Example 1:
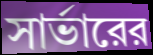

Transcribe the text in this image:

সার্ভারের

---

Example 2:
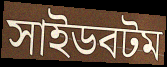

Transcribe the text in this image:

সাইডবটম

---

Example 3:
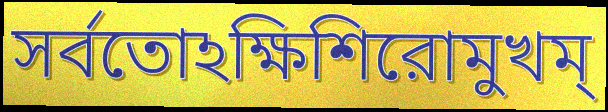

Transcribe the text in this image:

সর্বতোঽক্ষিশিরোমুখম্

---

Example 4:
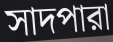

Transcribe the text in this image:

সাদপারা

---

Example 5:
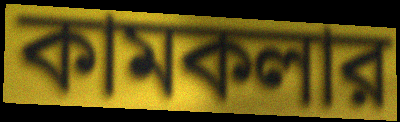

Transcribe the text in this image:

কামকলার